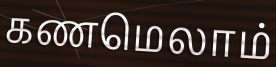
கணமெலாம்